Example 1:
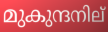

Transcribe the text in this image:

മുകുന്ദനില്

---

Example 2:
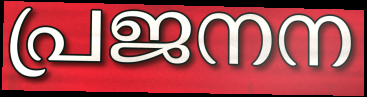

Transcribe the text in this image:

പ്രജനന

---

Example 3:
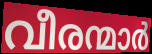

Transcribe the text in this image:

വീരന്മാർ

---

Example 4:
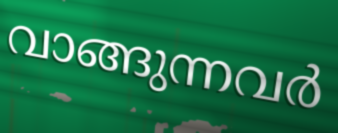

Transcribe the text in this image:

വാങ്ങുന്നവർ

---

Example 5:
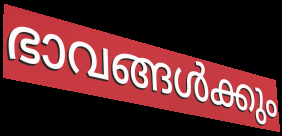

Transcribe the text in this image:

ഭാവങ്ങൾക്കും